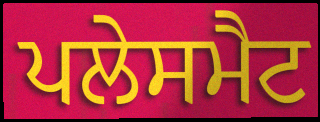
ਪਲੇਸਮੈਟ